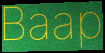
Baap